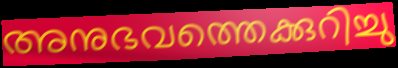
അനുഭവത്തെക്കുറിച്ചു